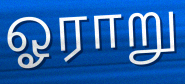
ஓராறு